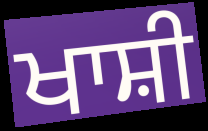
ਖਾਸ਼ੀ